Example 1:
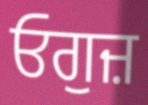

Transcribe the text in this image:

ਓਗੁਜ਼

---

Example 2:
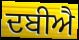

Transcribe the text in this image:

ਦਬੀਐ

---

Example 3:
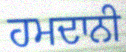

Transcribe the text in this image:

ਹਮਦਾਨੀ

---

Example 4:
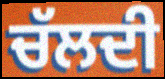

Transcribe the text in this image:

ਚੱਲਦੀ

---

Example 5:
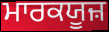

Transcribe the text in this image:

ਮਾਰਕਯੂਜ਼